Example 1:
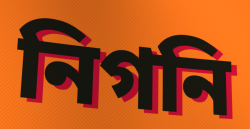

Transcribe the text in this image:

নিগনি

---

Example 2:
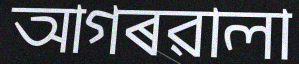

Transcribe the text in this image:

আগৰৱালা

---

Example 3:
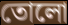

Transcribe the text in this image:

তোলো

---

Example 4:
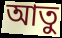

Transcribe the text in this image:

আতু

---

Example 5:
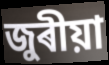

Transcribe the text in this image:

জুৰীয়া